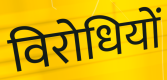
विरोधियों